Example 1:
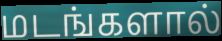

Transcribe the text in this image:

மடங்களால்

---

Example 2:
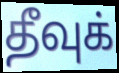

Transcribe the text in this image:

தீவுக்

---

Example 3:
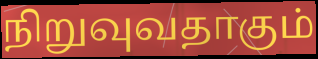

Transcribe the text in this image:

நிறுவுவதாகும்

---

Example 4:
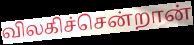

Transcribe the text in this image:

விலகிச்சென்றான்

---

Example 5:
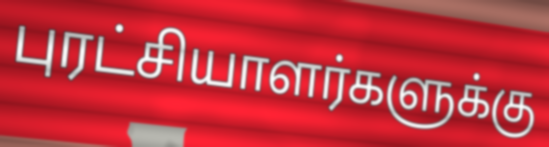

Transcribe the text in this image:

புரட்சியாளர்களுக்கு